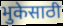
भुकेसाठी